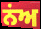
ਨਂਅ